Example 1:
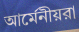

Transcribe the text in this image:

আর্মেনীয়রা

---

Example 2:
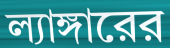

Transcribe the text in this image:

ল্যাঙ্গারের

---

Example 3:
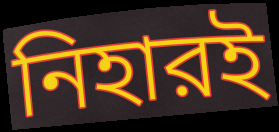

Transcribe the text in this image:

নিহারই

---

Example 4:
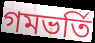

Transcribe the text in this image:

গমভর্তি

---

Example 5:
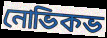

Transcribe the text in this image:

নোভিকভ